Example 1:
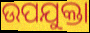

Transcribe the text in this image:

ଉପଯୁକ୍ତା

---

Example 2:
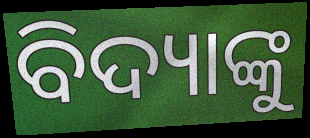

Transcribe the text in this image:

ବିଦ୍ୟାଙ୍କୁ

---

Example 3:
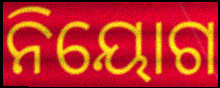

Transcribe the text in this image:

ନିୟୋଗ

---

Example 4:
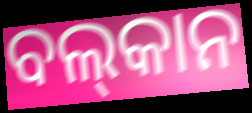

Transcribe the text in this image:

ବଲ୍‌କାନ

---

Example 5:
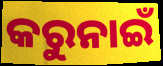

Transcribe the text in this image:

କରୁନାଇଁ